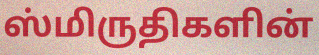
ஸ்மிருதிகளின்